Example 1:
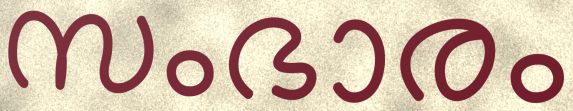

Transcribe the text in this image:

സംഭാരം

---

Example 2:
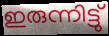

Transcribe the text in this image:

ഇരുന്നിട്ടു്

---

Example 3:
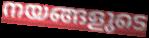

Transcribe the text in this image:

നയങ്ങളുടെ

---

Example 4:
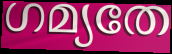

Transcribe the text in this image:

ഗമ്യതേ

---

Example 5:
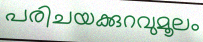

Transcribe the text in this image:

പരിചയക്കുറവുമൂലം